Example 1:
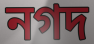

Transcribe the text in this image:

নগদ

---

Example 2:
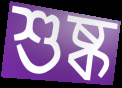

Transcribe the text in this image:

শুষ্ক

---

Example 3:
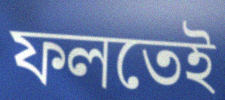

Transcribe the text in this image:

ফলতেই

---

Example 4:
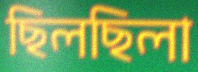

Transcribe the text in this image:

ছিলছিলা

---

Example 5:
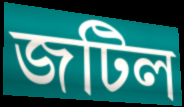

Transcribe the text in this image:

জটিল